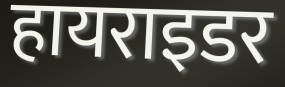
हायराइडर